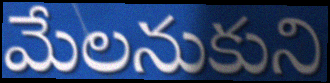
మేలనుకుని